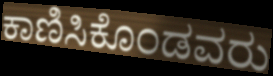
ಕಾಣಿಸಿಕೊಂಡವರು